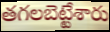
తగలబెట్టేశారు